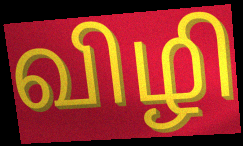
விழி